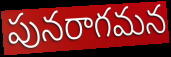
పునరాగమన